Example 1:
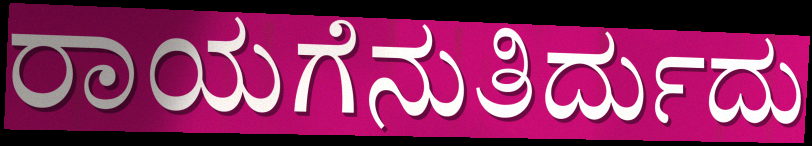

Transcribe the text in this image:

ರಾಯಗೆನುತಿರ್ದುದು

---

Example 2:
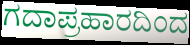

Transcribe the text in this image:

ಗದಾಪ್ರಹಾರದಿಂದ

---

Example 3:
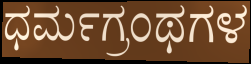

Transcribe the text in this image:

ಧರ್ಮಗ್ರಂಥಗಳ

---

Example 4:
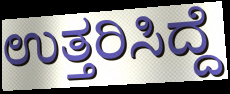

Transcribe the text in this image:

ಉತ್ತರಿಸಿದ್ದೆ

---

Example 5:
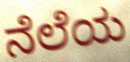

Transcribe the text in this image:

ನೆಲೆಯ